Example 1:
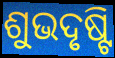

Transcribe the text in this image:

ଶୁଭଦୃଷ୍ଟି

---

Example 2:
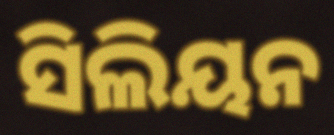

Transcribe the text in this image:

ସିଲିୟନ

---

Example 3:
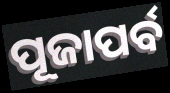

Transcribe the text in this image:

ପୂଜାପର୍ବ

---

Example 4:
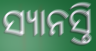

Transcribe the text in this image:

ସ୍ୟାନସ୍ତି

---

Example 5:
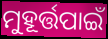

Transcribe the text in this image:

ମୁହୂର୍ତ୍ତପାଇଁ